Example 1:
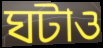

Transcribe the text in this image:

ঘটাও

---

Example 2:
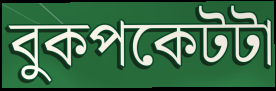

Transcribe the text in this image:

বুকপকেটটা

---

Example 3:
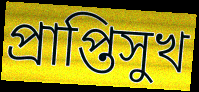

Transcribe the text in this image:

প্রাপ্তিসুখ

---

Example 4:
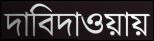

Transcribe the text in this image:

দাবিদাওয়ায়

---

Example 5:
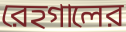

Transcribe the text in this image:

রেহগালের